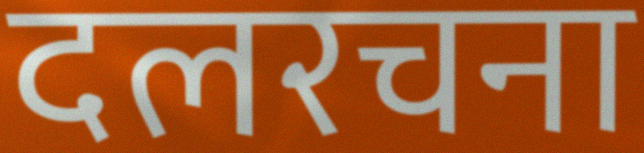
दलरचना